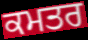
ਕਮਤਰ